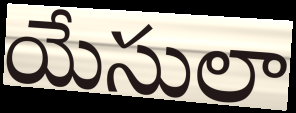
యేసులా